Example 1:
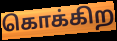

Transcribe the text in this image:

கொக்கிற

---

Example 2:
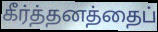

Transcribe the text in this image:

கீர்த்தனத்தைப்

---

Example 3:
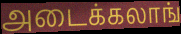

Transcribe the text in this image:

அடைக்கலாங்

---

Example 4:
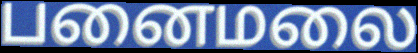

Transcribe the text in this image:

பனைமலை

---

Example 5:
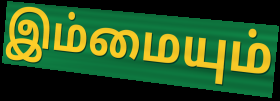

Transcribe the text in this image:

இம்மையும்